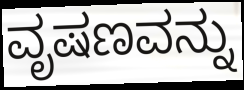
ವೃಷಣವನ್ನು